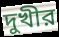
দুখীর